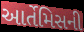
આર્તેમિસની